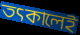
তৎকালেই